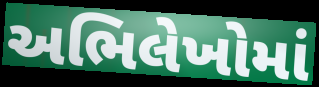
અભિલેખોમાં